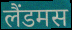
लैंडमस